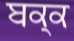
ਬਕ੍ਕ